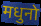
मधुनो